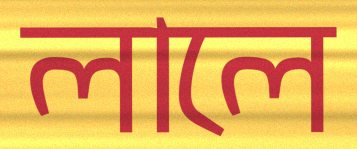
লালে